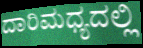
ದಾರಿಮಧ್ಯದಲ್ಲಿ